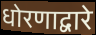
धोरणाद्वारे